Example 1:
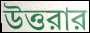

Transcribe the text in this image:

উত্তরার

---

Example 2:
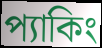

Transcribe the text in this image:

প্যাকিং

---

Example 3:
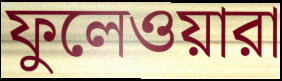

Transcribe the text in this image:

ফুলেওয়ারা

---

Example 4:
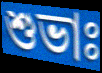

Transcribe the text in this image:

শুভাঃ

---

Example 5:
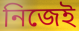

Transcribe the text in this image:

নিজেই